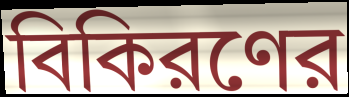
বিকিরণের